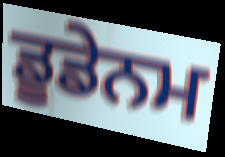
ਡੂਡੇਨਮ